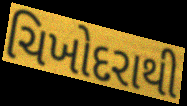
ચિખોદરાથી